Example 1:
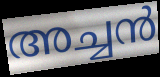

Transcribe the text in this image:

അച്ചൻ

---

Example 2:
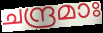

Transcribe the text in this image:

ചന്ദ്രമാഃ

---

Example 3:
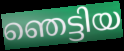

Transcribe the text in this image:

ഞെട്ടിയ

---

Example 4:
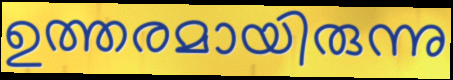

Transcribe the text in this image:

ഉത്തരമായിരുന്നു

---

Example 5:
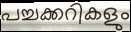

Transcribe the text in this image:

പച്ചക്കറികളും